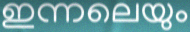
ഇന്നലെയും